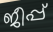
ജീപ്പ്